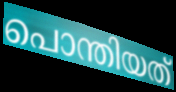
പൊന്തിയത്